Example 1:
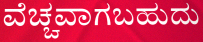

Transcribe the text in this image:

ವೆಚ್ಚವಾಗಬಹುದು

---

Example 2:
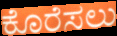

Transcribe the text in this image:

ಕೊರೆಸಲು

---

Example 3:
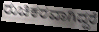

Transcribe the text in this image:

ರುಚಿಕರವಾಗಿದ್ದರೆ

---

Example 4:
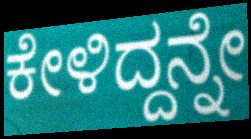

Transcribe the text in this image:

ಕೇಳಿದ್ದನ್ನೇ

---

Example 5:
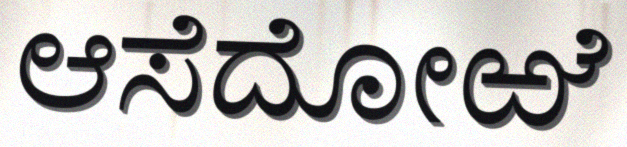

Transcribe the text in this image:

ಆಸೆದೋಱೆ